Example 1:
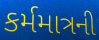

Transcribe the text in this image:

કર્મમાત્રની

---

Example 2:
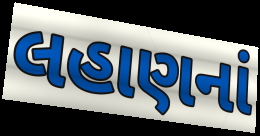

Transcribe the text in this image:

લહાણનાં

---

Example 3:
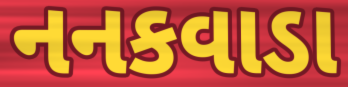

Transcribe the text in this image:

નનકવાડા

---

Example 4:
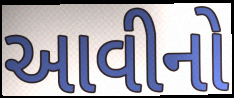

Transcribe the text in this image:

આવીનો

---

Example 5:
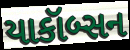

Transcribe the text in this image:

યાકૉબ્સન